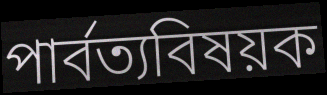
পার্বত্যবিষয়ক